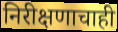
निरीक्षणाचाही